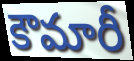
కౌమారీ